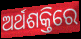
ଅର୍ଥଶକ୍ତିରେ